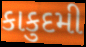
કાકુદમી